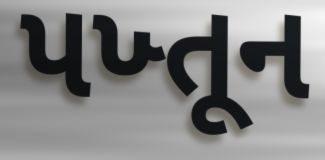
પખ્તૂન